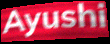
Ayushi